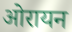
ओरायन